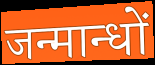
जन्मान्धों